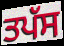
ਤਪੱਸ